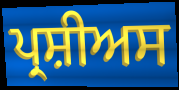
ਪ੍ਰਸ਼ੀਅਸ